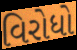
વિરોધો